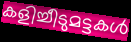
കളിച്ചീടുമട്ടകൾ